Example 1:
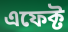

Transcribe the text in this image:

এফেক্ট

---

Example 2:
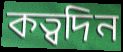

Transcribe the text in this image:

কত্বদিন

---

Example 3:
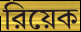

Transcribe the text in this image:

রিয়েক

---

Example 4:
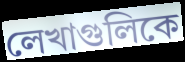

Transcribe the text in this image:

লেখাগুলিকে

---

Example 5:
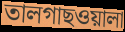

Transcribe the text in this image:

তালগাছওয়ালা